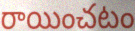
రాయించటం